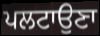
ਪਲਟਾਉਣਾ